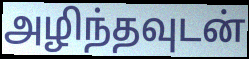
அழிந்தவுடன்